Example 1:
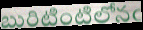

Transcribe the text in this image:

బురిటింటిలోనఁ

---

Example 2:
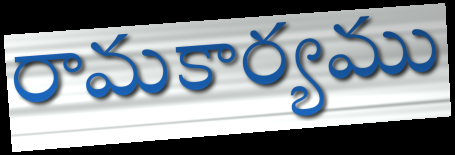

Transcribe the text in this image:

రామకార్యము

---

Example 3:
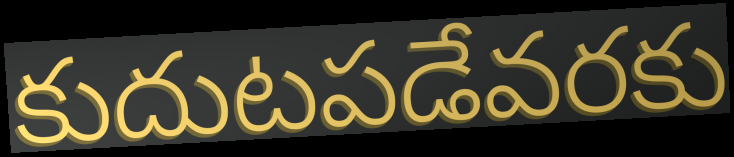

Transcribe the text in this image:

కుదుటపడేవరకు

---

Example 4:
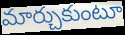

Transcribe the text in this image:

మార్చుకుంటూ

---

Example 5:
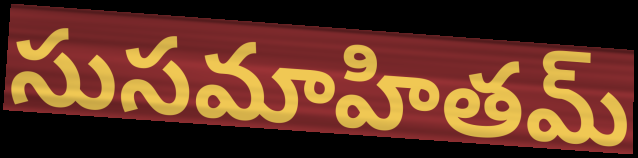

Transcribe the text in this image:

సుసమాహితమ్